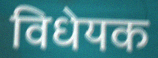
विधेयक